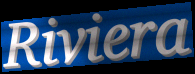
Riviera